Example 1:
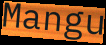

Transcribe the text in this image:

Mangu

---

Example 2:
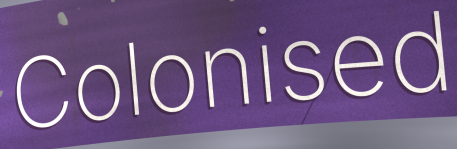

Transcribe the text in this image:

Colonised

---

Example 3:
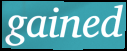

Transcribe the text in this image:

gained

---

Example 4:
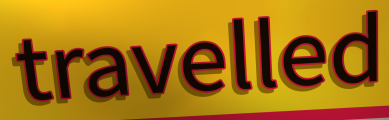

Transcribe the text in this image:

travelled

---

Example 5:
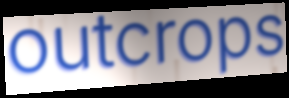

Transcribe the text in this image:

outcrops